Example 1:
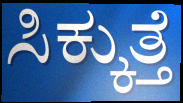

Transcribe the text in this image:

ಸಿಕ್ಕುತ್ತೆ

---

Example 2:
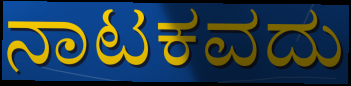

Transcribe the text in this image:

ನಾಟಕವದು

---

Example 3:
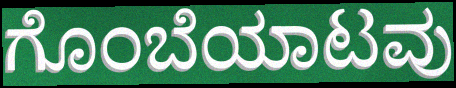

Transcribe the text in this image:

ಗೊಂಬೆಯಾಟವು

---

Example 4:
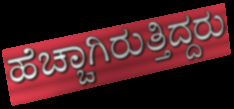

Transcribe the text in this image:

ಹೆಚ್ಚಾಗಿರುತ್ತಿದ್ದರು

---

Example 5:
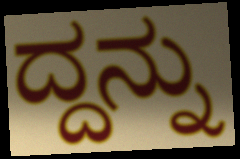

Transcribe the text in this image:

ದ್ದನ್ನು